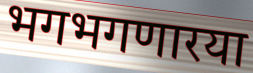
भगभगणारया